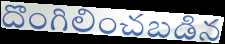
దొంగిలించబడిన